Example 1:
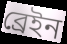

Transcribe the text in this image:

ব্ৰেইন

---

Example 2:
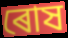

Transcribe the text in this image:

ৰোষ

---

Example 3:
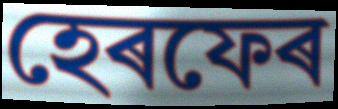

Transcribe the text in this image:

হেৰফেৰ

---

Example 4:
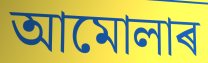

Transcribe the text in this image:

আমোলাৰ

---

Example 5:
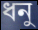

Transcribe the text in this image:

ধনু